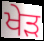
ਖੇੜ